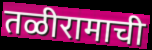
तळीरामाची